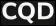
CQD